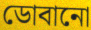
ডোবানো